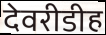
देवरीडीह